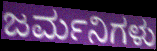
ಜರ್ಮನಿಗಳು